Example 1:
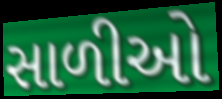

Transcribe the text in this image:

સાળીઓ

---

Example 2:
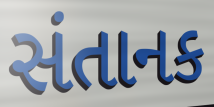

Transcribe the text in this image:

સંતાનક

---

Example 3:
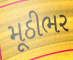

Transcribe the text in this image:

મૂઠીભર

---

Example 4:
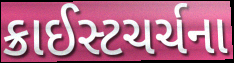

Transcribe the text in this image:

ક્રાઈસ્ટચર્ચના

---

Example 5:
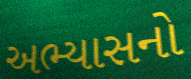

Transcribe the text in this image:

અભ્યાસનો